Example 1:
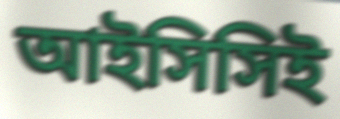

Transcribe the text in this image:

আইসিসিই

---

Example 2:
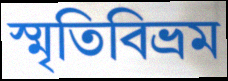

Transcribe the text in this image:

স্মৃতিবিভ্রম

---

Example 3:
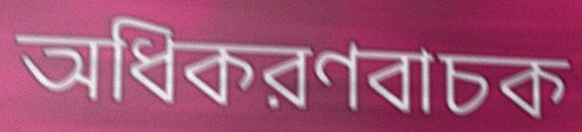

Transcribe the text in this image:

অধিকরণবাচক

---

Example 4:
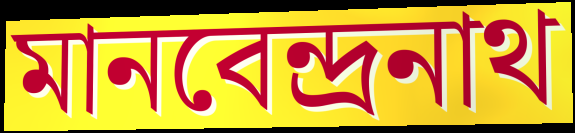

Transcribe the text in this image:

মানবেন্দ্রনাথ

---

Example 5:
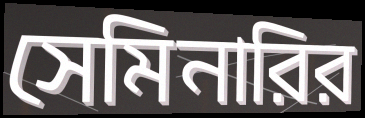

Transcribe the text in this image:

সেমিনারির